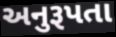
અનુરૂપતા